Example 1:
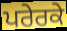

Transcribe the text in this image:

ਪਰੇਰਕੇ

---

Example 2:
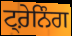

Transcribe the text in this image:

ਟ੍ਰ਼ੇਨਿੰਗ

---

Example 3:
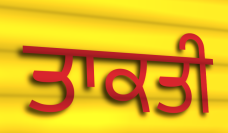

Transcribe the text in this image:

ਤਾਕਤੀ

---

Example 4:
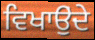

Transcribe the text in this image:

ਵਿਖਾਉੁਂਦੇ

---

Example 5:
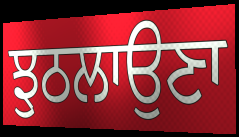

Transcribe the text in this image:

ਝੁਠਲਾਉਣਾ